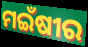
ମଇଁଷୀର